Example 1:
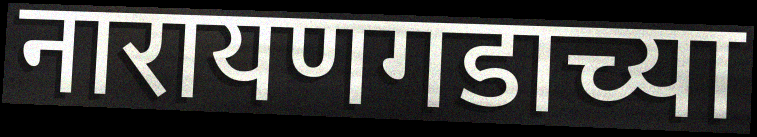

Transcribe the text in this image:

नारायणगडाच्या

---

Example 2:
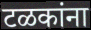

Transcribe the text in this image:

टळकांना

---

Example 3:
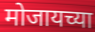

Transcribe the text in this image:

मोजायच्या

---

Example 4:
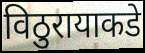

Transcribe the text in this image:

विठुरायाकडे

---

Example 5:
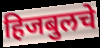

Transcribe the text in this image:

हिजबुलचे